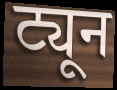
ट्यून